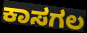
ಕಾಸಗಲ